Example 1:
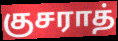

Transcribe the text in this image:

குசராத்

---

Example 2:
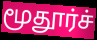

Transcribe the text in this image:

மூதூர்ச்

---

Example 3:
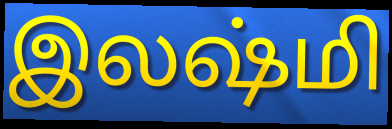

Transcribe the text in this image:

இலஷ்மி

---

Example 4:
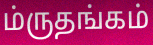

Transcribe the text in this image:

ம்ருதங்கம்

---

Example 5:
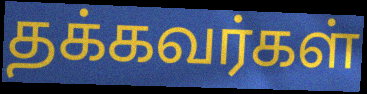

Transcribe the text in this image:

தக்கவர்கள்